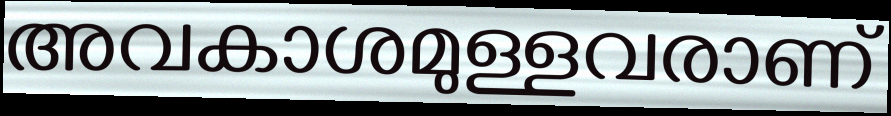
അവകാശമുള്ളവരാണ്